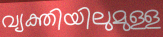
വ്യക്തിയിലുമുള്ള